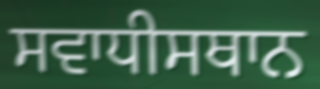
ਸਵਾਧੀਸਥਾਨ